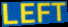
LEFT